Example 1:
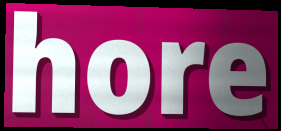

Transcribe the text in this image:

hore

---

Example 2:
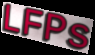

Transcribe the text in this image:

LFPs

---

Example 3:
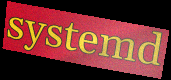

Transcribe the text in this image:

systemd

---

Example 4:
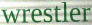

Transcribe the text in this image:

wrestler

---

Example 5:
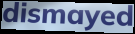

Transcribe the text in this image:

dismayed